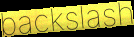
backslash